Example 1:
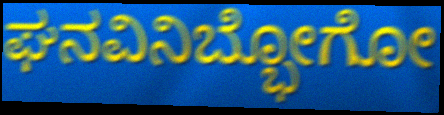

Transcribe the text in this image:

ಘನವಿನಿಬ್ಭೋಗೋ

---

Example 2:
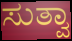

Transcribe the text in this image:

ಸುತ್ವಾ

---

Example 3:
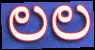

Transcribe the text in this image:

ಲಲ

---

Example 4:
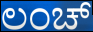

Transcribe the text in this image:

ಲಂಚ್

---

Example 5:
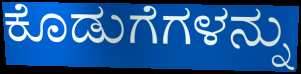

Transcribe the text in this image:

ಕೊಡುಗೆಗಳನ್ನು